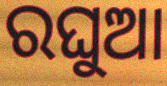
ରଘୁଆ